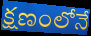
క్షణంలోనే